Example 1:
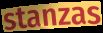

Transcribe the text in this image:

stanzas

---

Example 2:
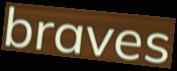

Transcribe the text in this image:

braves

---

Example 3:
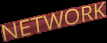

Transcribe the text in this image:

NETWORK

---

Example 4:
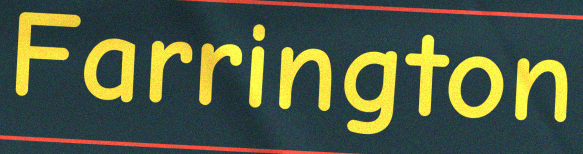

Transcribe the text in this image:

Farrington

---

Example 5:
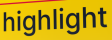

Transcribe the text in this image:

highlight